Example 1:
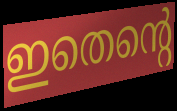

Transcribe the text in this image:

ഇതെന്റെ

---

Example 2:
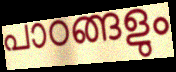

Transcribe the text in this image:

പാഠങ്ങളും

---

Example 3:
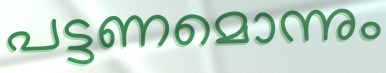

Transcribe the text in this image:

പട്ടണമൊന്നും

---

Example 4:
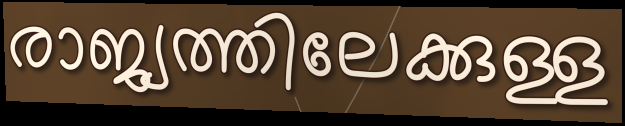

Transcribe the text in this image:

രാജ്യത്തിലേക്കുള്ള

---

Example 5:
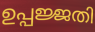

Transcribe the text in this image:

ഉപ്പജ്ജതി